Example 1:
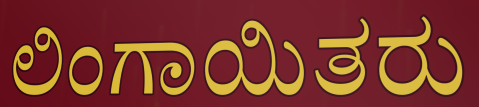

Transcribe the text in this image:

ಲಿಂಗಾಯಿತರು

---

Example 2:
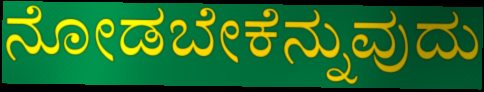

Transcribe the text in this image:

ನೋಡಬೇಕೆನ್ನುವುದು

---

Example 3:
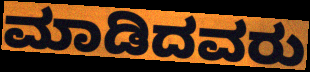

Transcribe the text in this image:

ಮಾಡಿದವರು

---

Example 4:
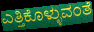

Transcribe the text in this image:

ಎತ್ತಿಕೊಳ್ಳುವಂತೆ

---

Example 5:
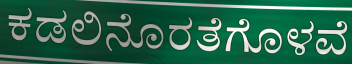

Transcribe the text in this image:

ಕಡಲಿನೊರತೆಗೊಳವೆ